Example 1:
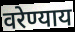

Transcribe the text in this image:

वरेण्याय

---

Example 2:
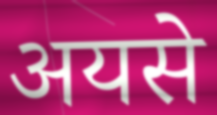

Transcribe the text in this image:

अयसे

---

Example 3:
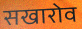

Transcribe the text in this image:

सखारोव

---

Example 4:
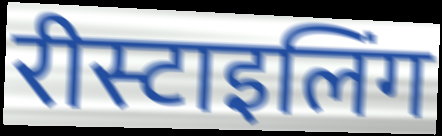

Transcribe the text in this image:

रीस्टाइलिंग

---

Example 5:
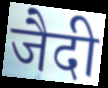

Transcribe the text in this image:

जैदी